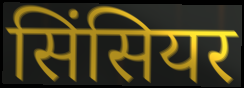
सिंसियर